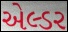
એલ્ડર